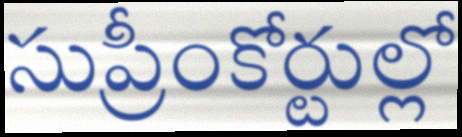
సుప్రీంకోర్టుల్లో